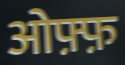
ओफ़्फ़